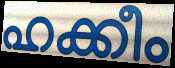
ഹക്കീം